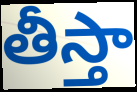
తీస్తా